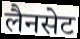
लैनसेट